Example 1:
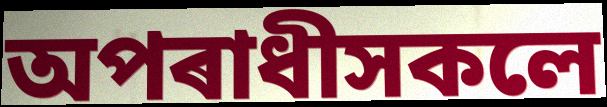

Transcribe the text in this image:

অপৰাধীসকলে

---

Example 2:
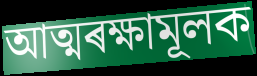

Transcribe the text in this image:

আত্মৰক্ষামূলক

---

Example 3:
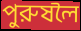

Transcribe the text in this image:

পুৰুষলৈ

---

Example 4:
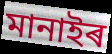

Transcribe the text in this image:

মানাইৰ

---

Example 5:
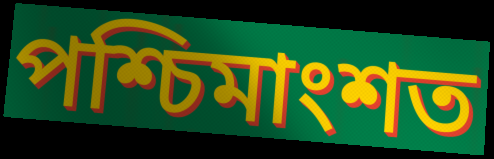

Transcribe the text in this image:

পশ্চিমাংশত